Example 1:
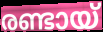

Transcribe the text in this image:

രണ്ടായ്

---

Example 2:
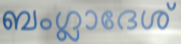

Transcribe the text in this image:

ബംഗ്ലാദേശ്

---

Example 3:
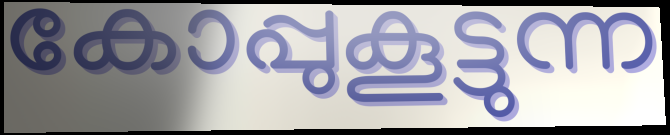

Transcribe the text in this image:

കോപ്പുകൂട്ടുന്ന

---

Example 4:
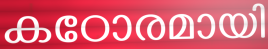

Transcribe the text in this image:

കഠോരമായി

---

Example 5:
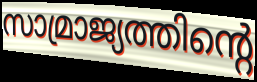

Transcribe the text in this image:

സാമ്രാജ്യത്തിന്റെ